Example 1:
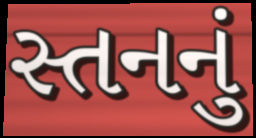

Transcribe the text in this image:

સ્તનનું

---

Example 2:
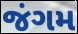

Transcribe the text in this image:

જંગમ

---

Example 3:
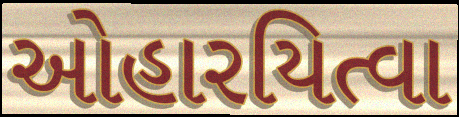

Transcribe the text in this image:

ઓહારયિત્વા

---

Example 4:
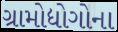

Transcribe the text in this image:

ગ્રામોદ્યોગોના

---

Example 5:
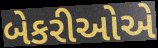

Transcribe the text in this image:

બેકરીઓએ